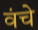
वंचे